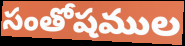
సంతోషముల